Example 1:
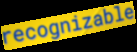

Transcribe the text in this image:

recognizable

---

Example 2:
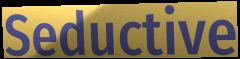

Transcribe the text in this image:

Seductive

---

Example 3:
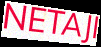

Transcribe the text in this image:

NETAJI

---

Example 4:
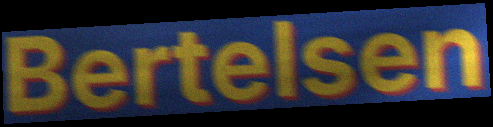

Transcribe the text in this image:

Bertelsen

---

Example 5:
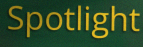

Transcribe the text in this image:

Spotlight